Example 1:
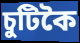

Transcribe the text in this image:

চুটিকৈ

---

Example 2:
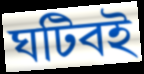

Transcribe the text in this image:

ঘটিবই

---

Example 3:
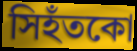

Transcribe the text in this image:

সিহঁতকো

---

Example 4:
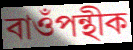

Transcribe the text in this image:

বাওঁপন্থীক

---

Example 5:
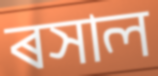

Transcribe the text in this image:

ৰসাল